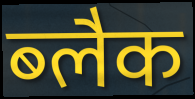
ब्‍लैक